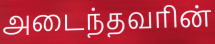
அடைந்தவரின்